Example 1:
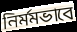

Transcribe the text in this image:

নির্মমভাবে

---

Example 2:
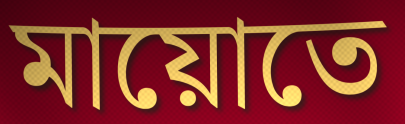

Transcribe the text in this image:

মায়োতে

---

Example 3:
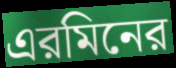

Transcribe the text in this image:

এরমিনের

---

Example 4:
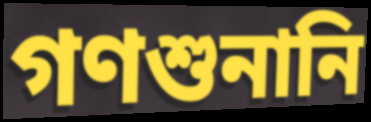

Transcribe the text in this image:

গণশুনানি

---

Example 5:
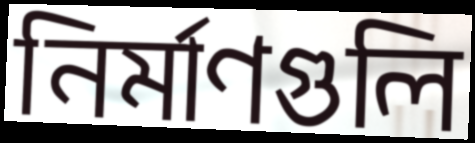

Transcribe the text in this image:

নির্মাণগুলি